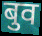
बुव